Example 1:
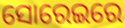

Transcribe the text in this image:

ସୋରେଇରେ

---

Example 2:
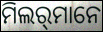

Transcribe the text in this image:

ମିଲର୍‌ମାନେ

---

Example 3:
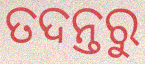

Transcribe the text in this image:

ତଦନ୍ତରୁ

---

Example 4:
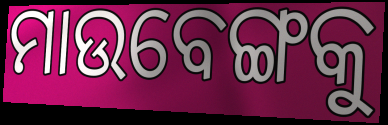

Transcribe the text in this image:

ମାଉବେଙ୍ଗକୁ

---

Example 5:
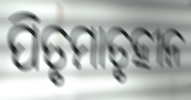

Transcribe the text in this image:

ପିତୃମାତୃହୀନ